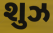
શુઝ